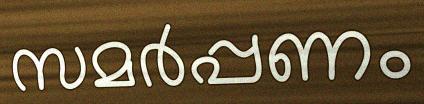
സമർപ്പണം